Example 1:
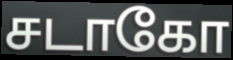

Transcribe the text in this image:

சடாகோ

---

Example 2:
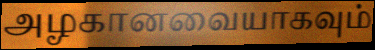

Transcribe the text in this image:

அழகானவையாகவும்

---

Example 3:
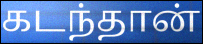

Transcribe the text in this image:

கடந்தான்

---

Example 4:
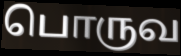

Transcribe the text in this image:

பொருவ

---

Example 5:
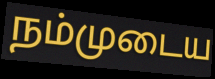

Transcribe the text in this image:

நம்முடைய